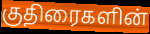
குதிரைகளின்